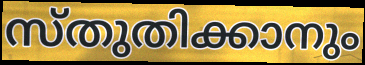
സ്തുതിക്കാനും